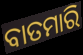
ବାତମାରି